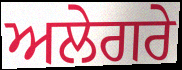
ਅਲੇਗਰੇ